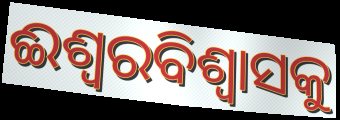
ଈଶ୍ୱରବିଶ୍ଵାସକୁ